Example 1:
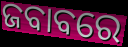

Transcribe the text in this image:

ଜବାବରେ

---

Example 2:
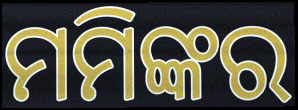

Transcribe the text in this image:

ମମିଙ୍କର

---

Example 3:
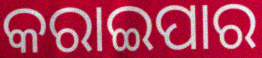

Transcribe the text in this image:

କରାଇପାର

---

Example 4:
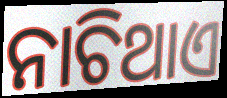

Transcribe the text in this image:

ନାଚିଥାଏ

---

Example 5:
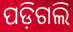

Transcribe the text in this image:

ପଡ଼ିଗଲି